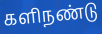
களிநண்டு